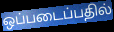
ஒப்படைப்பதில்